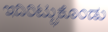
ಇದಿರಿಟ್ಟುಕೊಂಡು